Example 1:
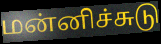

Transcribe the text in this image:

மன்னிச்சுடு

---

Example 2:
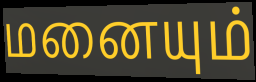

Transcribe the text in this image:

மனையும்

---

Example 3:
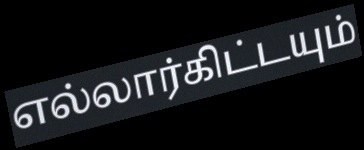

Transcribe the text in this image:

எல்லார்கிட்டயும்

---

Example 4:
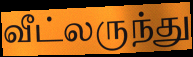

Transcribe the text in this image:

வீட்லருந்து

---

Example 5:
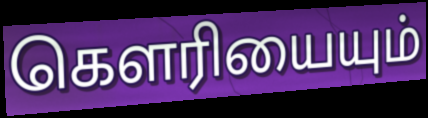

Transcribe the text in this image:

கௌரியையும்